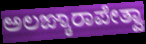
ಅಲಙ್ಕಾರಾಪೇತ್ವಾ